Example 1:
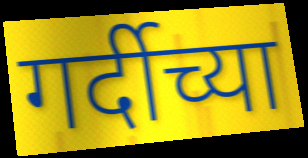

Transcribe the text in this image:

गर्दीच्या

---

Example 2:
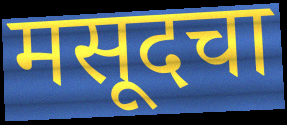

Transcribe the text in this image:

मसूदचा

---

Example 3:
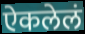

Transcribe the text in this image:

ऐकलेलं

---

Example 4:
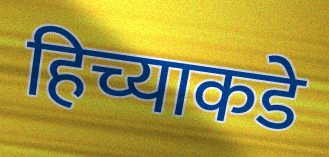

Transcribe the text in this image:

हिच्याकडे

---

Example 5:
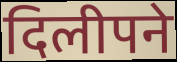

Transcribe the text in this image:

दिलीपने